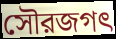
সৌরজগৎ